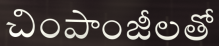
చింపాంజీలతో